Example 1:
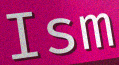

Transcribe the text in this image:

Ism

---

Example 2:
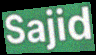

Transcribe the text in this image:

Sajid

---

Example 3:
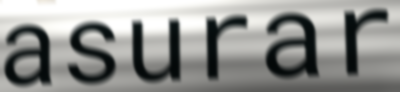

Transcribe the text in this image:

asurar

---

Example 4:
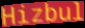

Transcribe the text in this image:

Hizbul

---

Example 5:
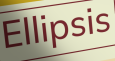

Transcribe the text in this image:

Ellipsis